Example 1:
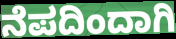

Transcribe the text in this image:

ನೆಪದಿಂದಾಗಿ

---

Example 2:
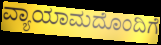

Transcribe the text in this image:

ವ್ಯಾಯಾಮದೊಂದಿಗೆ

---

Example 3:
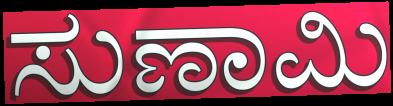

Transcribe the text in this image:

ಸುಣಾಮಿ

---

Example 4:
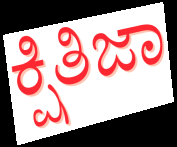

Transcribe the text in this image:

ಕ್ಷಿತಿಜಾ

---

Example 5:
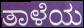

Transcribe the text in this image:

ತಾಳೆಯ